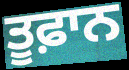
ਤੂਫ਼ਾਨ